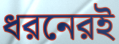
ধরনেরই